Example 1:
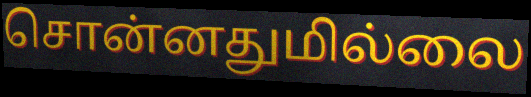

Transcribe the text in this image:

சொன்னதுமில்லை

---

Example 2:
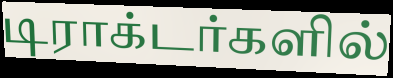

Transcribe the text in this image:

டிராக்டர்களில்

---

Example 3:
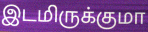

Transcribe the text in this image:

இடமிருக்குமா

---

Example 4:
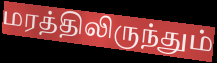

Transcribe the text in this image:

மரத்திலிருந்தும்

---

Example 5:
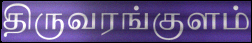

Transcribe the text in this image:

திருவரங்குளம்